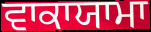
ਵਾਕਾਯਾਮਾ